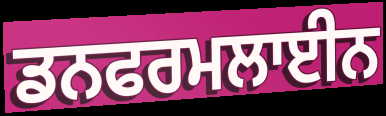
ਡਨਫਰਮਲਾਈਨ